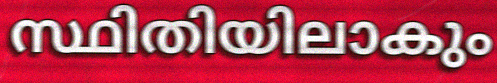
സ്ഥിതിയിലാകും